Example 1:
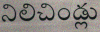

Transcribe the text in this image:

నిలిచిండ్లు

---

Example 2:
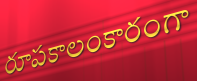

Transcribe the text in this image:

రూపకాలంకారంగా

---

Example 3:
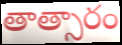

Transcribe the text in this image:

తాత్సారం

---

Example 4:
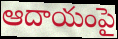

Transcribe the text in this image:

ఆదాయంపై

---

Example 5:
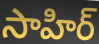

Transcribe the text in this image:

సాహిర్